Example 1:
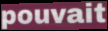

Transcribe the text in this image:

pouvait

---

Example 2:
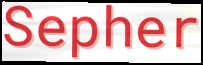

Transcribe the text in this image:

Sepher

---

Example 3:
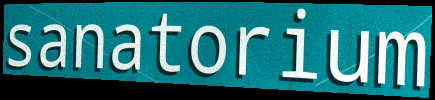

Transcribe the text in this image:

sanatorium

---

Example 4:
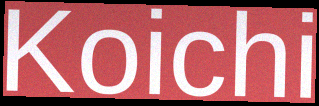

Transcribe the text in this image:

Koichi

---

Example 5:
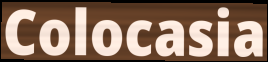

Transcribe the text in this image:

Colocasia